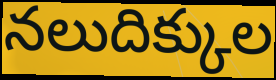
నలుదిక్కుల